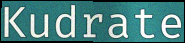
Kudrate